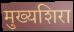
मुख्यशिरा